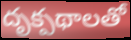
దృక్పథాలతో